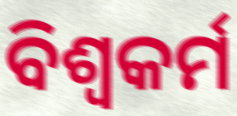
ବିଶ୍ୱକର୍ମ